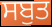
ਸਬੁਤ